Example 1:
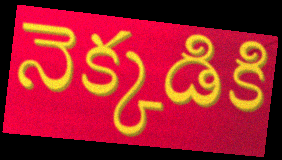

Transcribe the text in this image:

నెక్కడికి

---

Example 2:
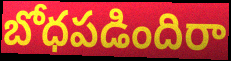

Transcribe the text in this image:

బోధపడిందిరా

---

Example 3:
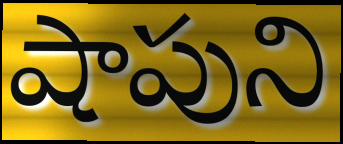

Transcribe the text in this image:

షాపుని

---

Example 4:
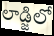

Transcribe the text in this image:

లాడ్జిలో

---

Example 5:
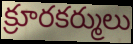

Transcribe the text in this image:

క్రూరకర్ములు